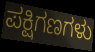
ಪಕ್ಷಿಗಣಗಳು